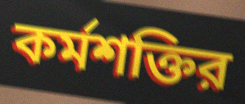
কর্মশক্তির